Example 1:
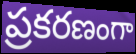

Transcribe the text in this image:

ప్రకరణంగా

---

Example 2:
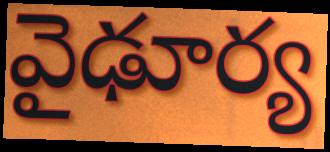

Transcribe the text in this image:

వైఢూర్య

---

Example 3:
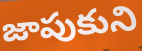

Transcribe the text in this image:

జాపుకుని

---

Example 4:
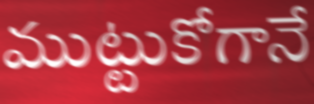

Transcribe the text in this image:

ముట్టుకోగానే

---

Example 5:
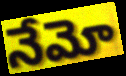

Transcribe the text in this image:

నేమో